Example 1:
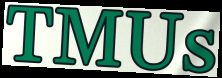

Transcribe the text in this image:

TMUs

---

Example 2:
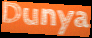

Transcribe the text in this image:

Dunya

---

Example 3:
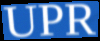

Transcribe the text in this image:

UPR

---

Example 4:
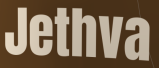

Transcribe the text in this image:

Jethva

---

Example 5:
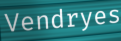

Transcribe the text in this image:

Vendryes